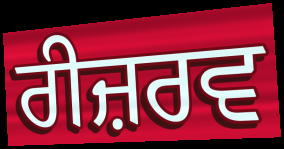
ਰੀਜ਼ਰਵ